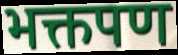
भक्तपण